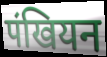
पंखियन